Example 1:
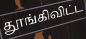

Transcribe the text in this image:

தூங்கிவிட்ட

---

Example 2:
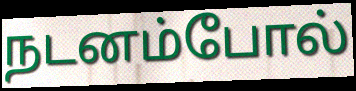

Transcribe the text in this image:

நடனம்போல்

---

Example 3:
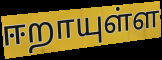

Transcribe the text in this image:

ஈறாயுள்ள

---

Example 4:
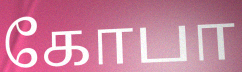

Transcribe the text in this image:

கோபா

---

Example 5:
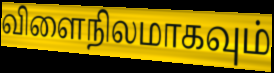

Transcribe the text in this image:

விளைநிலமாகவும்